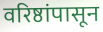
वरिष्ठांपासून